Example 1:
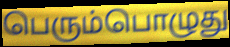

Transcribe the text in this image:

பெரும்பொழுது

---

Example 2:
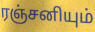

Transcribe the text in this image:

ரஞ்சனியும்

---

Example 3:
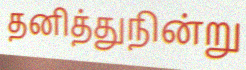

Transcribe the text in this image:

தனித்துநின்று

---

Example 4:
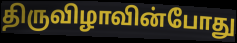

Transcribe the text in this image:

திருவிழாவின்போது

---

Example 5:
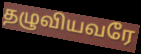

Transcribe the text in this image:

தழுவியவரே